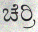
ಚೆರ‍್ರಿ